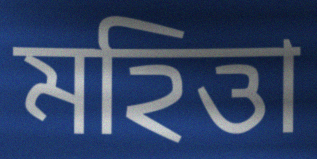
মহিত্তা